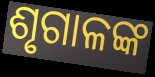
ଶୃଗାଳଙ୍କ